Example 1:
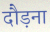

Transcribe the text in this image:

दौड़ना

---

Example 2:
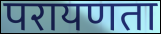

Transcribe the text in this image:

परायणता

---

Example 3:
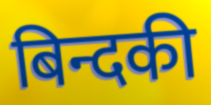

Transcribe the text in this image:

बिन्दकी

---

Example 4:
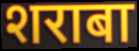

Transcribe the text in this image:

शराबा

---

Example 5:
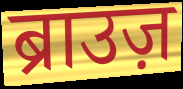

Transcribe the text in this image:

ब्राउज़